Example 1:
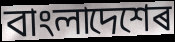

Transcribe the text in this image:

বাংলাদেশেৰ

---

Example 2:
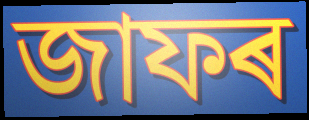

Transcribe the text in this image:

জাফৰ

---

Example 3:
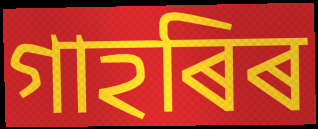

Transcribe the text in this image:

গাহৰিৰ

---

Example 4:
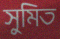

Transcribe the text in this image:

সুমিত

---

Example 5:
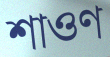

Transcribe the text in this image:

শাওণ